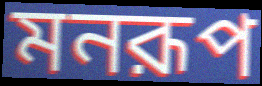
মনরূপ